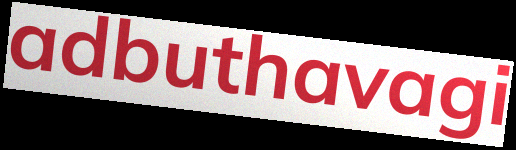
adbuthavagi